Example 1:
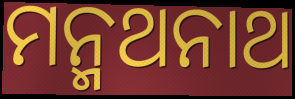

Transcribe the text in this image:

ମନ୍ମଥନାଥ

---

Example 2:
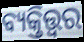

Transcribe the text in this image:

ବ୍ୟକ୍ତିତ୍ତ୍ଵର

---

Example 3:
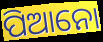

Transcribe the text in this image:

ପିଆନୋ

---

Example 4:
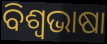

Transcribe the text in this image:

ବିଶ୍ୱଭାଷା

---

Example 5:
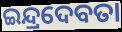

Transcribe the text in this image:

ଇନ୍ଦ୍ରଦେବତା